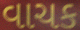
વાચક